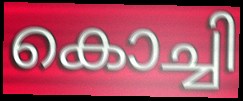
കൊച്ചി